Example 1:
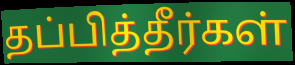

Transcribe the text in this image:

தப்பித்தீர்கள்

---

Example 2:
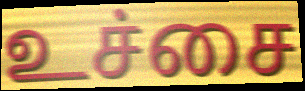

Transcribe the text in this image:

உச்சை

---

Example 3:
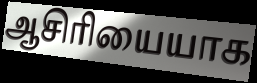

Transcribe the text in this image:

ஆசிரியையாக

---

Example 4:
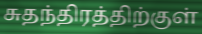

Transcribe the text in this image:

சுதந்திரத்திற்குள்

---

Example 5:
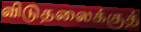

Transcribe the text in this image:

விடுதலைக்குத்